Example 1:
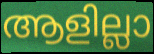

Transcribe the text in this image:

ആളില്ലാ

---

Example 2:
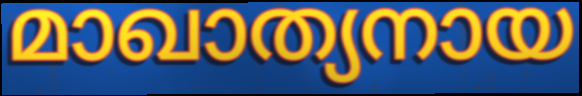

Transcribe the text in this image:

മാഖാത്യനായ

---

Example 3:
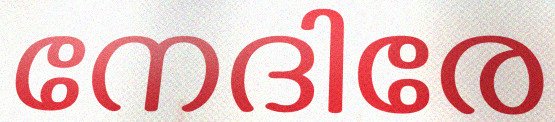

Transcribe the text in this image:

നേദിരേ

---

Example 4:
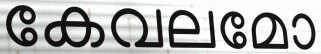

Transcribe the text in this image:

കേവലമോ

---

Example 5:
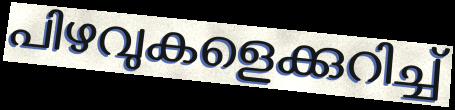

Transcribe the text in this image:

പിഴവുകളെക്കുറിച്ച്